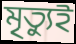
মৃত্যুই